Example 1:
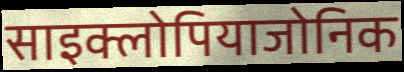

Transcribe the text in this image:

साइक्लोपियाजोनिक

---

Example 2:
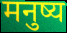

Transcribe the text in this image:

मनुष्य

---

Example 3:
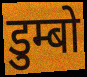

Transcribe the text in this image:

डुम्बो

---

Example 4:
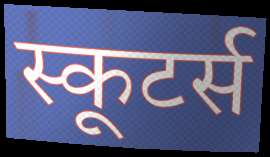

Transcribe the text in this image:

स्कूटर्स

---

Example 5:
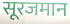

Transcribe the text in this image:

सूरजमान